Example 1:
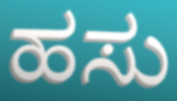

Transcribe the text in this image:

ಹಸು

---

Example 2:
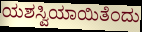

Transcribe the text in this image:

ಯಶಸ್ವಿಯಾಯಿತೆಂದು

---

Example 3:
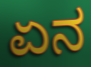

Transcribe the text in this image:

ಏನ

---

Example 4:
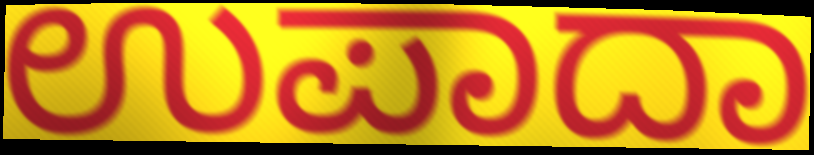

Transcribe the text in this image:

ಉಪಾದಾ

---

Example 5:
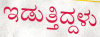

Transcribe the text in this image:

ಇಡುತ್ತಿದ್ದಳು